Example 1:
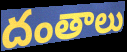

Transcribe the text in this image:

దంతాలు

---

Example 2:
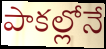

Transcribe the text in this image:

పాకల్లోనే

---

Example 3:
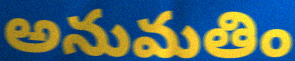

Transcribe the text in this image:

అనుమతిం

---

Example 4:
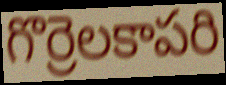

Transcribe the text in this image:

గొర్రెలకాపరి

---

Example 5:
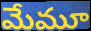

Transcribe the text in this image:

మేమూ